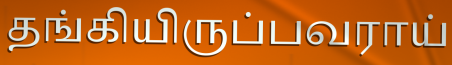
தங்கியிருப்பவராய்